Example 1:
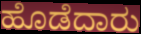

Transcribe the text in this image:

ಹೊಡೆದಾರು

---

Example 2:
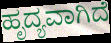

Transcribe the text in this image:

ಹೃದ್ಯವಾಗಿದೆ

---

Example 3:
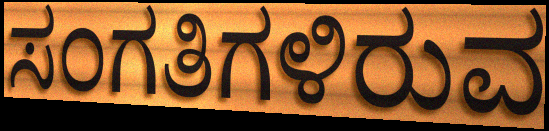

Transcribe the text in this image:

ಸಂಗತಿಗಳಿರುವ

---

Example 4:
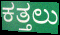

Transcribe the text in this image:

ಕತ್ತಲು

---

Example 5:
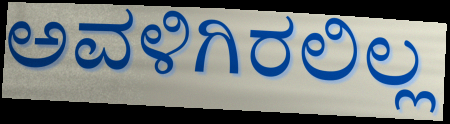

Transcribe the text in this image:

ಅವಳಿಗಿರಲಿಲ್ಲ